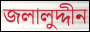
জলালুদ্দীন